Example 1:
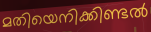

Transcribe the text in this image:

മതിയെനിക്കിണ്ടൽ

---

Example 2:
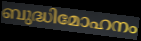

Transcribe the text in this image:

ബുദ്ധിമോഹനം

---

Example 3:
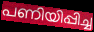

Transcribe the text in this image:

പണിയിപ്പിച്ച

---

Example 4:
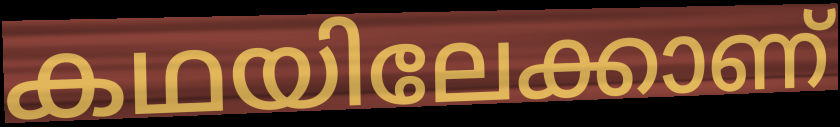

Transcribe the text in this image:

കഥയിലേക്കാണ്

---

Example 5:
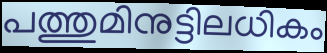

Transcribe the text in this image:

പത്തുമിനുട്ടിലധികം